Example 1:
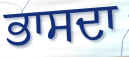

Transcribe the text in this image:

ਭਾਸਦਾ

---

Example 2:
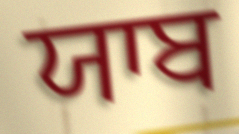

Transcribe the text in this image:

ਯਾਬ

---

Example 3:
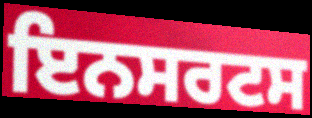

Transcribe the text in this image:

ਇਨਸਰਟਸ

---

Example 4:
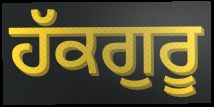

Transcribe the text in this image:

ਹੱਕਗੁਰੂ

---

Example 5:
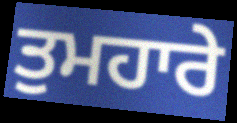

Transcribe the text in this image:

ਤੁਮਹਾਰੇ